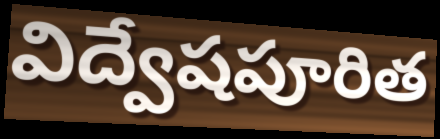
విద్వేషపూరిత